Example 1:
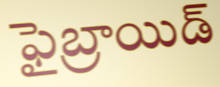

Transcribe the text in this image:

ఫైబ్రాయిడ్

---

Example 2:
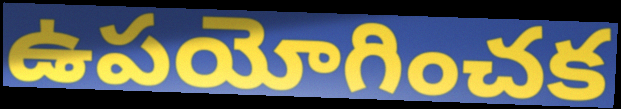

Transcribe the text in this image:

ఉపయోగించక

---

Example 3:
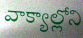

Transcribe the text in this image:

వాక్యాల్లోని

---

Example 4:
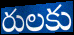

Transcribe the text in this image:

రులకు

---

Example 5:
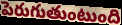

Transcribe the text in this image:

పెరుగుతుంటుంది